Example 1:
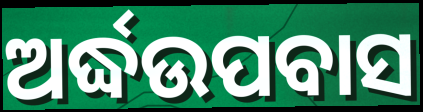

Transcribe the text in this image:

ଅର୍ଦ୍ଧଉପବାସ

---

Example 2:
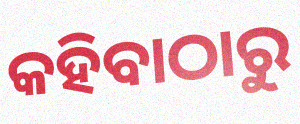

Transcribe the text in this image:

କହିବାଠାରୁ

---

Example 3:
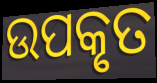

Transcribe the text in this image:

ଉପକୃତ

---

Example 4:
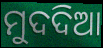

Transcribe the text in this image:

ମୁଦଦିଆ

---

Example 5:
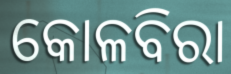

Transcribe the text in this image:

କୋଳବିରା